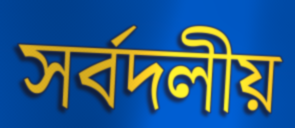
সর্বদলীয়